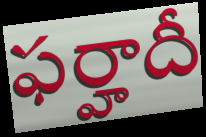
ఫర్హాదీ